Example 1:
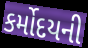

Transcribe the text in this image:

કર્મોદયની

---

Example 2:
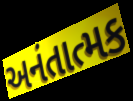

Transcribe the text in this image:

અનંતાત્મક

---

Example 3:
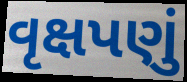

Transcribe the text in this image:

વૃક્ષપણું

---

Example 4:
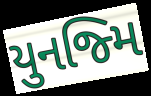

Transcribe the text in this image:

યુનજ્મિ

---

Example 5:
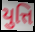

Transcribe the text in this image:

યુત્તિ